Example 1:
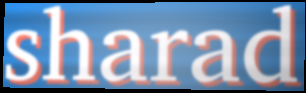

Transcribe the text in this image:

sharad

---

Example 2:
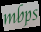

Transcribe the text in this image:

mbps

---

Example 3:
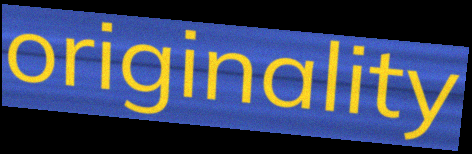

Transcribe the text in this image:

originality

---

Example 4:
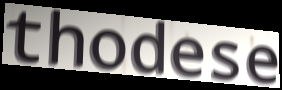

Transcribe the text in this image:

thodese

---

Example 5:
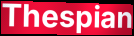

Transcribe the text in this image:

Thespian